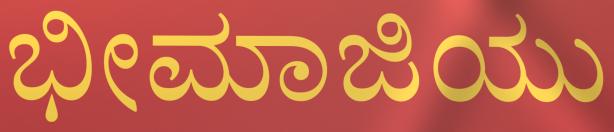
ಭೀಮಾಜಿಯು